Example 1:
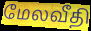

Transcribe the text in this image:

மேலவீதி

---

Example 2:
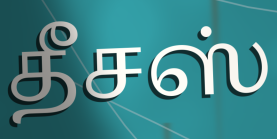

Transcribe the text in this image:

தீசஸ்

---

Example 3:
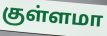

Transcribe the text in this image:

குள்ளமா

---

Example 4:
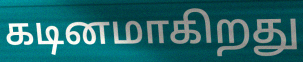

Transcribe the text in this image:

கடினமாகிறது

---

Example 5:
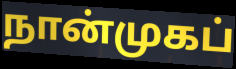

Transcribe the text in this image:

நான்முகப்